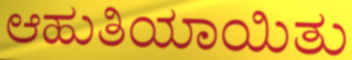
ಆಹುತಿಯಾಯಿತು